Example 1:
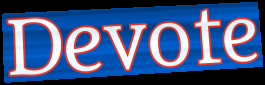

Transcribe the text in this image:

Devote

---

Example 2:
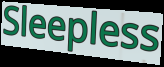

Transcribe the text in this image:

Sleepless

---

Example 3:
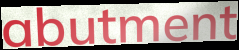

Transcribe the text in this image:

abutment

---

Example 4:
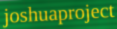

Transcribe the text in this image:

joshuaproject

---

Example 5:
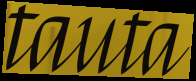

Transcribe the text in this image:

tauta